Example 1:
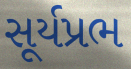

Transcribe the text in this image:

સૂર્યપ્રભ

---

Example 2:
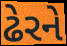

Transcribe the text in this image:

ઢેરને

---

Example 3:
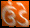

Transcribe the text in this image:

ઉંડે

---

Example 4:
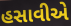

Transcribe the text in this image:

હસાવીએ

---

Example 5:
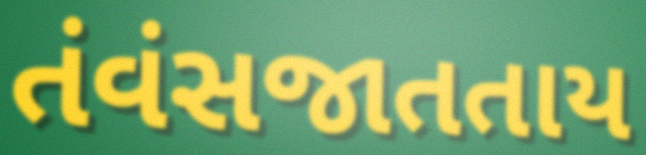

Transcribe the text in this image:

તંવંસજાતતાય